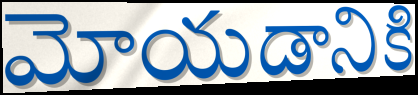
మోయడానికి